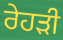
ਰੇਹੜੀ